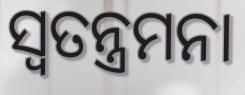
ସ୍ୱତନ୍ତ୍ରମନା